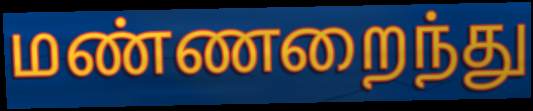
மண்ணறைந்து